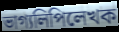
ভাগ্যলিপিলেখক